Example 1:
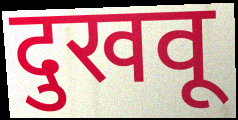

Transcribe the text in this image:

दुखवू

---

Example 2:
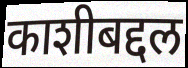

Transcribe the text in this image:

काशीबद्दल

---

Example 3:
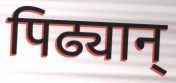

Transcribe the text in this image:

पिढ्यान्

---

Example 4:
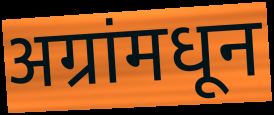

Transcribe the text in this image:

अग्रांमधून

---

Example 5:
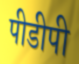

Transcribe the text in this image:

पीडीपी